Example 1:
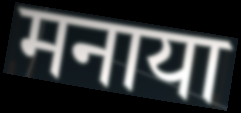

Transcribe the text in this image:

मनाया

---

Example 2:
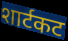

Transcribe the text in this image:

शार्टकट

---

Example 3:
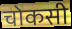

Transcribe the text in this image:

चोकसी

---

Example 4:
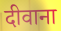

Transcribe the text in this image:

दीवाना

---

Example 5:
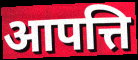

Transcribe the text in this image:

आपत्ति